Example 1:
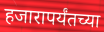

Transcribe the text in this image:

हजारापर्यंतच्या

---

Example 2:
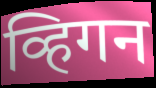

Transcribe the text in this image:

व्हिगन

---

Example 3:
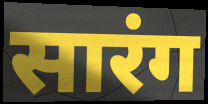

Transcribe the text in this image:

सारंग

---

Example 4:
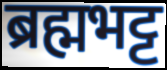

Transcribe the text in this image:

ब्रह्मभट्ट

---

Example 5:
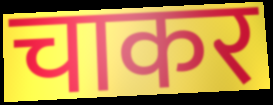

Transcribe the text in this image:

चाकर